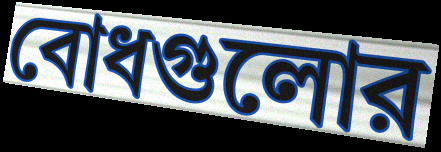
বোধগুলোর